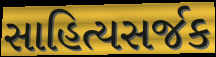
સાહિત્યસર્જક